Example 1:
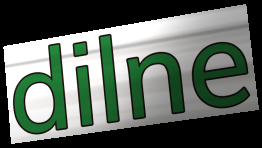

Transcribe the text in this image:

dilne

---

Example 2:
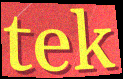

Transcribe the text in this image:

tek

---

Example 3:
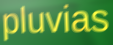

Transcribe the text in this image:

pluvias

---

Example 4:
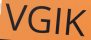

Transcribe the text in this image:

VGIK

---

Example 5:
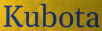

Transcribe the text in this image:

Kubota